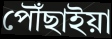
পৌঁছাইয়া